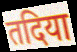
तदिया